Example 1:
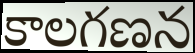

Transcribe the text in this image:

కాలగణన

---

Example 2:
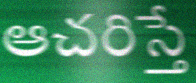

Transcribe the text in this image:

ఆచరిస్తే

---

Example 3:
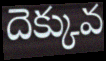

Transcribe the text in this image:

దెక్కువ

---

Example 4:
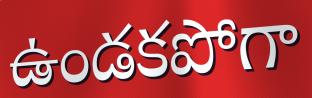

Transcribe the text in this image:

ఉండకపోగా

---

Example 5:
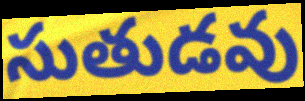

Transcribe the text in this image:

సుతుడవు